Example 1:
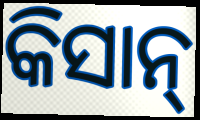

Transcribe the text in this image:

କିସାନ୍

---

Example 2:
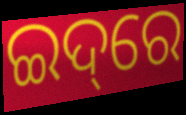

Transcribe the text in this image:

ଇଦ୍‌ରେ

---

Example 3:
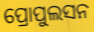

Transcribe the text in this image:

ପ୍ରୋପୁଲସନ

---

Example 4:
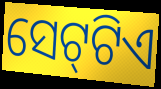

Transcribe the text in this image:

ସେଟ୍‍ଟିଏ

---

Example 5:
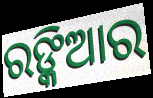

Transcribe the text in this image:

ରଙ୍କିଆର